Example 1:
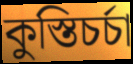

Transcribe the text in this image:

কুস্তিচর্চা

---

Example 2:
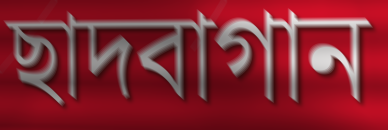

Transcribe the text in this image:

ছাদবাগান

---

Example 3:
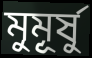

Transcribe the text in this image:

মুমূর্ষু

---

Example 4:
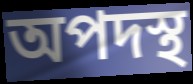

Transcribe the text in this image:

অপদস্থ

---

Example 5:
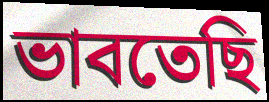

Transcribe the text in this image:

ভাবতেছি